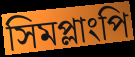
সিমপ্লাংপি